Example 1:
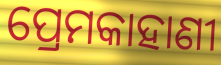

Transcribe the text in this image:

ପ୍ରେମକାହାଣୀ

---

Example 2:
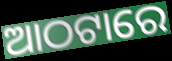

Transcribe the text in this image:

ଆଠଟାରେ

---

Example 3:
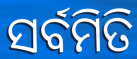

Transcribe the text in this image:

ସର୍ବମିତି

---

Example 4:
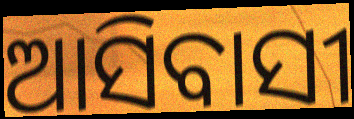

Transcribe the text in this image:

ଆସିବାସୀ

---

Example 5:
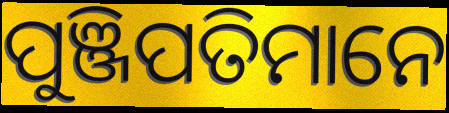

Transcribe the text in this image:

ପୁଞ୍ଜିପତିମାନେ